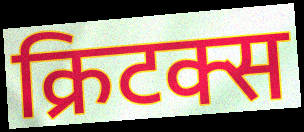
क्रिटक्स